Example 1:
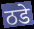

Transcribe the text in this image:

ठडे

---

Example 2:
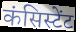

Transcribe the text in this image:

कंसिस्टेंट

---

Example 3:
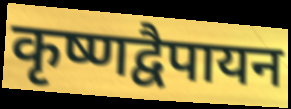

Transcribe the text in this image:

कृष्णद्वैपायन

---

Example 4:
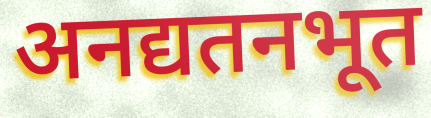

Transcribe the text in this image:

अनद्यतनभूत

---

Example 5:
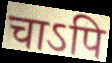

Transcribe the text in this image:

चाऽपि